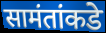
सामंतांकडे